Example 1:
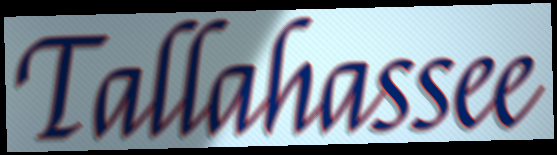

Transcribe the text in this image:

Tallahassee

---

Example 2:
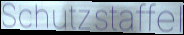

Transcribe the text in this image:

Schutzstaffel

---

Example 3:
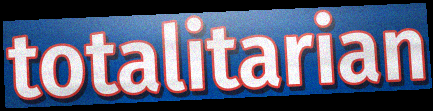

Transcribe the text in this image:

totalitarian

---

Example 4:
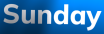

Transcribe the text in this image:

Sunday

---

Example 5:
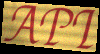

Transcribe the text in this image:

API